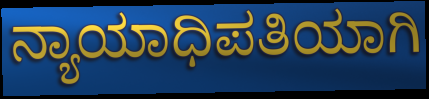
ನ್ಯಾಯಾಧಿಪತಿಯಾಗಿ